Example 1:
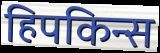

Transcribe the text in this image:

हिपकिन्स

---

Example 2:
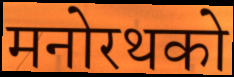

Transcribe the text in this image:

मनोरथको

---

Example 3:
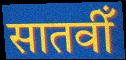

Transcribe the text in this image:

सातवीँ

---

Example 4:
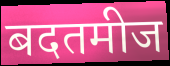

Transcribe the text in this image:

बदतमीज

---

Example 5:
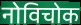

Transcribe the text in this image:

नोविचोक